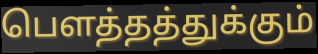
பௌத்தத்துக்கும்